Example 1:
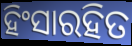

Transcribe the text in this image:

ହିଂସାରହିତ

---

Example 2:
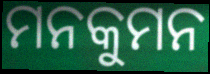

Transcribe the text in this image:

ମନକୁମନ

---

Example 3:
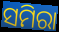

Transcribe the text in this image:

ସମିରା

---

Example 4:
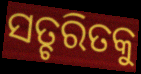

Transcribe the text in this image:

ସତ୍ଚରିତକୁ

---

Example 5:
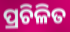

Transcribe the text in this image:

ପ୍ରଚିଳିତ